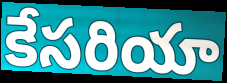
కేసరియా